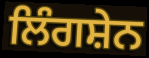
ਲਿੰਗਸ਼ੇਨ